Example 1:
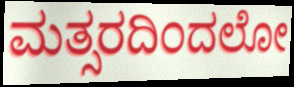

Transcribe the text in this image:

ಮತ್ಸರದಿಂದಲೋ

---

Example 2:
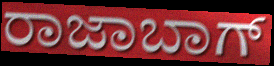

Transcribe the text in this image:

ರಾಜಾಬಾಗ್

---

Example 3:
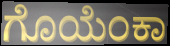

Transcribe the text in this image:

ಗೊಯೆಂಕಾ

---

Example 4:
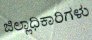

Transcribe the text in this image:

ಜಿಲ್ಲಾಧಿಕಾರಿಗಳು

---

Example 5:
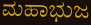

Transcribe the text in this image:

ಮಹಾಭುಜ